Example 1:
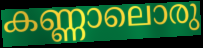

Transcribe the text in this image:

കണ്ണാലൊരു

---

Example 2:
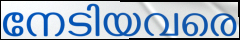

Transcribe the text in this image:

നേടിയവരെ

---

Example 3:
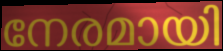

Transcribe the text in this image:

നേരമായി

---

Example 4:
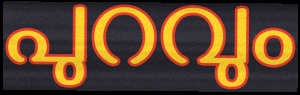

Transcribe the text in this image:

പുറവും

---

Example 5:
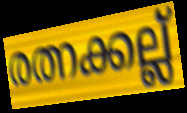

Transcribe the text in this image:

രത്നക്കല്ല്